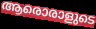
ആരൊരാളുടെ